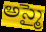
అస్మై